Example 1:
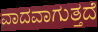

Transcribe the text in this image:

ವಾದವಾಗುತ್ತದೆ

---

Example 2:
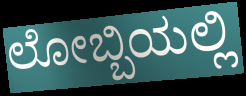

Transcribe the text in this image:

ಲೋಬ್ಬಿಯಲ್ಲಿ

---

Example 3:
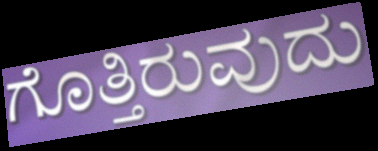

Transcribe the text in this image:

ಗೊತ್ತಿರುವುದು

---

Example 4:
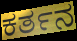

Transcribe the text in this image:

ಕರ್ತನ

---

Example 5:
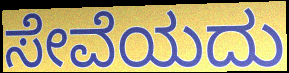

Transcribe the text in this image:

ಸೇವೆಯದು